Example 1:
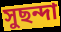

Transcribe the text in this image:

সুছন্দা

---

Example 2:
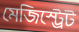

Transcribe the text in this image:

মেজিস্ট্রেট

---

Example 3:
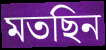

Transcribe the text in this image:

মতছিন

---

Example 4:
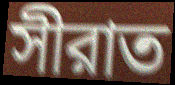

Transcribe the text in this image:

সীরাত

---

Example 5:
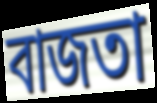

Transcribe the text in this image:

বাজতা